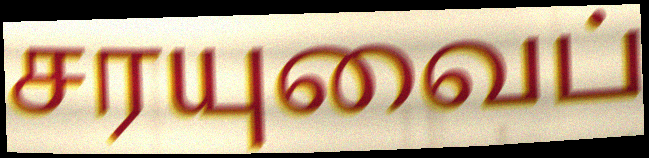
சரயுவைப்